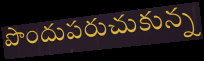
పొందుపరుచుకున్న